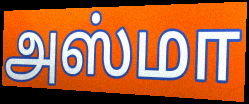
அஸ்மா